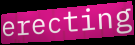
erecting